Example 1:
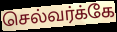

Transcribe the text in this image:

செல்வர்க்கே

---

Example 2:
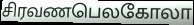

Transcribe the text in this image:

சிரவணபெலகோலா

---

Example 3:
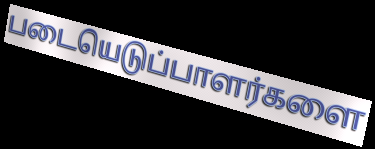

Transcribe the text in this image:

படையெடுப்பாளர்களை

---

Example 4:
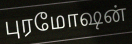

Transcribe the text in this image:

புரமோஷன்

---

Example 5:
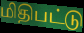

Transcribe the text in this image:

மிதிபட்டு